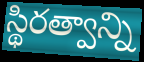
స్థిరత్వాన్ని